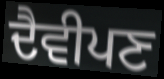
ਦੈਵੀਪਣ